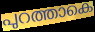
പുറത്താകെ